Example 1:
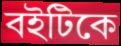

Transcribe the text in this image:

বইটিকে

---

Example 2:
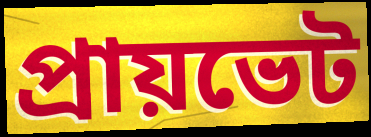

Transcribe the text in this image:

প্রায়ভেট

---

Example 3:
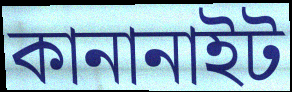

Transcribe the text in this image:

কানানাইট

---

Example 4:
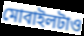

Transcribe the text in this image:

মোবাইলটাও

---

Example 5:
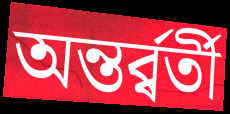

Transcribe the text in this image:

অন্তর্র্বর্তী